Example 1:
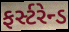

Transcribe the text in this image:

ફર્સ્ટરેન્ડ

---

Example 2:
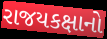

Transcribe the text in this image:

રાજયકક્ષાનો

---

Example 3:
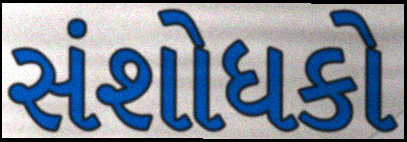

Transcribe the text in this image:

સંશોધકો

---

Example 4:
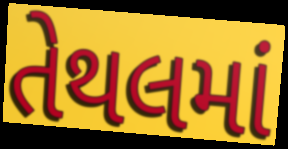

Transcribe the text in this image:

તેથલમાં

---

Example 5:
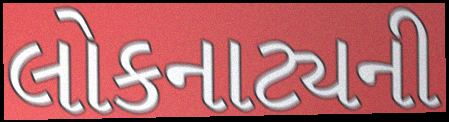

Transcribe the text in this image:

લોકનાટ્યની